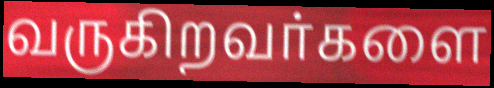
வருகிறவர்களை